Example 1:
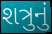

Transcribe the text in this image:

શત્રુનું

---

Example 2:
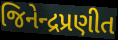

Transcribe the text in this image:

જિનેન્દ્રપ્રણીત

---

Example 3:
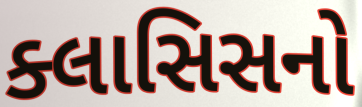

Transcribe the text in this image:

ક્લાસિસનો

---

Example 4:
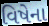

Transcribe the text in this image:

વિષેના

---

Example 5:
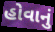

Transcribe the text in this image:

હોવાનું